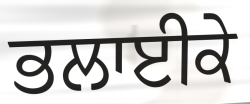
ਭਲਾਈਕੇ